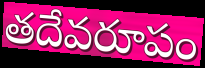
తదేవరూపం